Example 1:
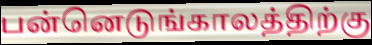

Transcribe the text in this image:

பன்னெடுங்காலத்திற்கு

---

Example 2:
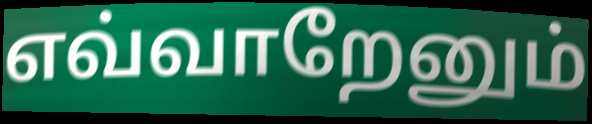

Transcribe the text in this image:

எவ்வாறேனும்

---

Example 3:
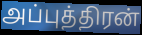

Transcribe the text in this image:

அப்புத்திரன்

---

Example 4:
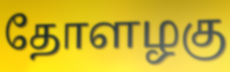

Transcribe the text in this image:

தோளழகு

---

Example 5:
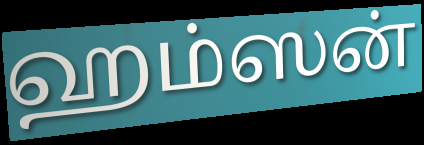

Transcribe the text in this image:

ஹம்ஸன்